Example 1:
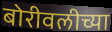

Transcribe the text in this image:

बोरीवलीच्या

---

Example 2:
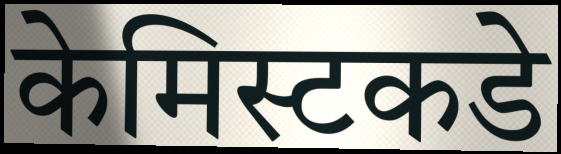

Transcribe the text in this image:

केमिस्टकडे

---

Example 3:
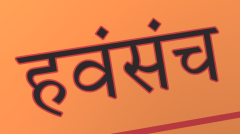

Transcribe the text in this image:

हवंसंच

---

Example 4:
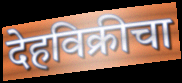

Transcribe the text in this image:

देहविक्रीचा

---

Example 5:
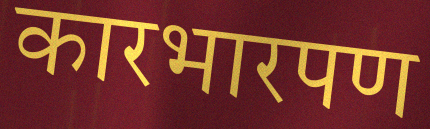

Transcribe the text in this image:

कारभारपण